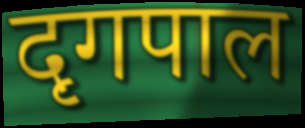
दृगपाल